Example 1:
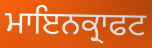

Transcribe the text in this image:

ਮਾਇਨਕ੍ਰਾਫਟ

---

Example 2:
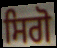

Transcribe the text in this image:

ਸਿਗੋ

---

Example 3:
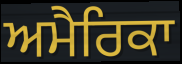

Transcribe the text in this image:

ਅਮੈਰਿਕਾ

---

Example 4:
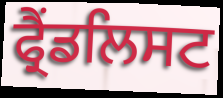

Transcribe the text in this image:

ਫ੍ਰੈਂਡਲਿਸਟ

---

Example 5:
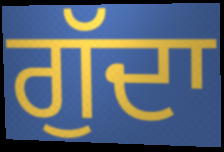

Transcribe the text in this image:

ਗੁੱਦਾ